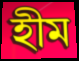
হীম